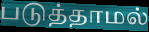
படுத்தாமல்